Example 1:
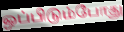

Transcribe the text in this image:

ஒப்பிடும்போது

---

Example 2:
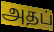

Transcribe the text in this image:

அதப்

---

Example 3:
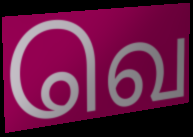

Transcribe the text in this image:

வெ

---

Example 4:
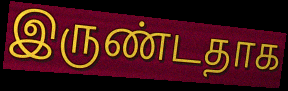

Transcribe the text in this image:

இருண்டதாக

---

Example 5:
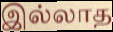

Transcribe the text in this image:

இல்லாத